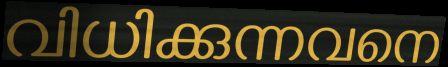
വിധിക്കുന്നവനെ